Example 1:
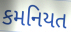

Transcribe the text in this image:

કમનિયત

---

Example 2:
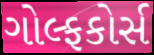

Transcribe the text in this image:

ગોલ્ફકોર્સ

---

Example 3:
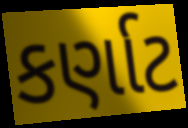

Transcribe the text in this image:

કર્ણાટ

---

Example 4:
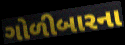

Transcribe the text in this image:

ગોળીબારના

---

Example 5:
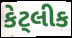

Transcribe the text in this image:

કેટ્લીક